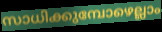
സാധിക്കുമ്പോഴെല്ലാം